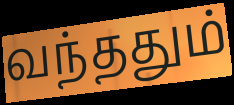
வந்ததும்